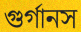
গুর্গানস